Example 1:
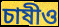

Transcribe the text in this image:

চাষীও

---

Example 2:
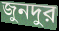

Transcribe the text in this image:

জুনদুর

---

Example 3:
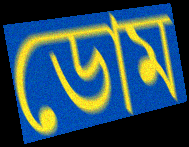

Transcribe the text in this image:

ডোম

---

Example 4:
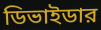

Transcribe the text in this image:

ডিভাইডার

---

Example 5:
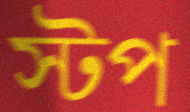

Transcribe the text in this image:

স্টপ